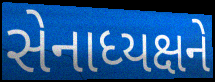
સેનાધ્યક્ષને